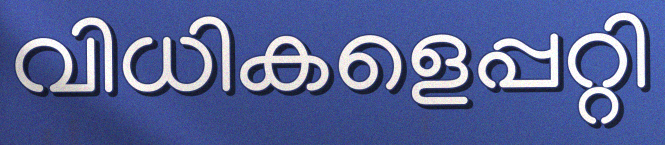
വിധികളെപ്പറ്റി